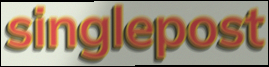
singlepost